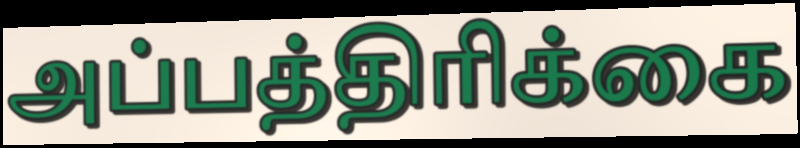
அப்பத்திரிக்கை